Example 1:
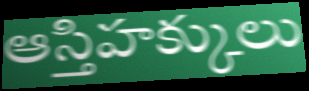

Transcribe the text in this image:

ఆస్తిహక్కులు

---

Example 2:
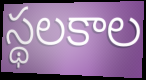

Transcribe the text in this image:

స్థలకాల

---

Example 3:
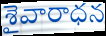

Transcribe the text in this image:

శైవారాధన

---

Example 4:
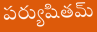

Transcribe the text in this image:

పర్యుషితమ్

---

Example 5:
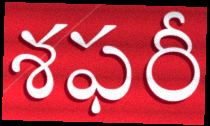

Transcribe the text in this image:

శఫరీ